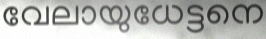
വേലായുധേട്ടനെ